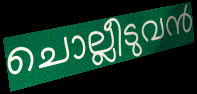
ചൊല്ലീടുവൻ